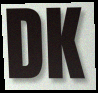
DK